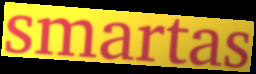
smartas